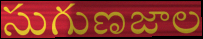
సుగుణజాల